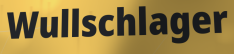
Wullschlager